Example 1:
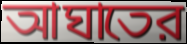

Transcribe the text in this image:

আঘাতের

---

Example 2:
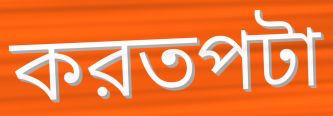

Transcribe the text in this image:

করতপটা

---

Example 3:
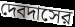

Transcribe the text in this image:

দেবদাসের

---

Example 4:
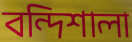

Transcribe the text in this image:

বন্দিশালা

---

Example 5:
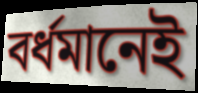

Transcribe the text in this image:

বর্ধমানেই